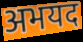
अभयद